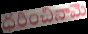
ధరించినామె